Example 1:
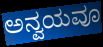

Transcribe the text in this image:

ಅನ್ವಯವೂ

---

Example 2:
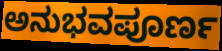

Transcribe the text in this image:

ಅನುಭವಪೂರ್ಣ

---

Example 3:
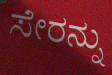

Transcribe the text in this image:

ಸೇರನ್ನು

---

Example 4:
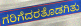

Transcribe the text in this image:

ಗರಿಗೆದರತೊಡಗಿತು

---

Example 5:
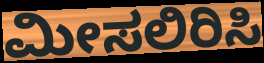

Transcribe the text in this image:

ಮೀಸಲಿರಿಸಿ